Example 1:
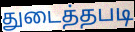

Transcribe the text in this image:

துடைத்தபடி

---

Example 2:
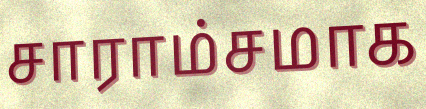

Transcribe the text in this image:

சாராம்சமாக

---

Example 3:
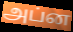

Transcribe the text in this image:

அப்ன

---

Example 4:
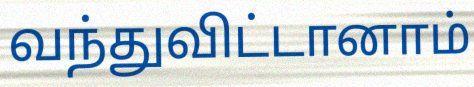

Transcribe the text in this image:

வந்துவிட்டானாம்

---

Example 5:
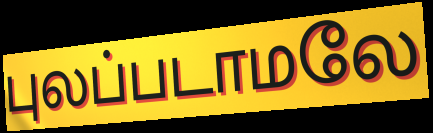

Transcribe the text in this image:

புலப்படாமலே